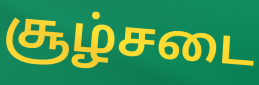
சூழ்சடை